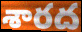
శారద